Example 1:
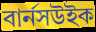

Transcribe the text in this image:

বার্নসউইক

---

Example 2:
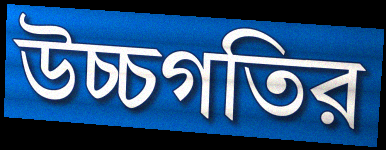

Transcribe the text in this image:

উচ্চগতির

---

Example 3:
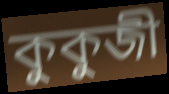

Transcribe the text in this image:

কুকুজী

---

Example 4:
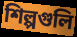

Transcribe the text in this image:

শিল্পগুলি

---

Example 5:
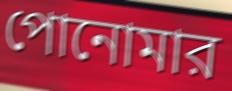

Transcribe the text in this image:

পোনোমার